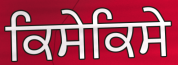
ਕਿਸੇਕਿਸੇ